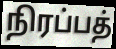
நிரப்பத்